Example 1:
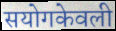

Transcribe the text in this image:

सयोगकेवली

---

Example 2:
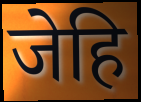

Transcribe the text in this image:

जेहि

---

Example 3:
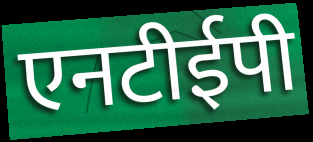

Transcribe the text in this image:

एनटीईपी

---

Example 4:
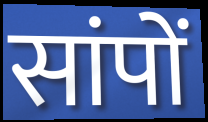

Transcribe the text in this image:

सांपों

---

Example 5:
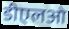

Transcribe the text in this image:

डीएलओ